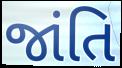
જાંતિ